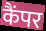
कैंपर